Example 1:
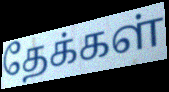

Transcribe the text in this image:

தேக்கள்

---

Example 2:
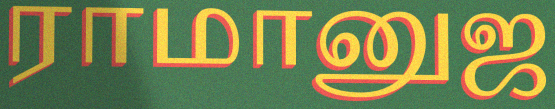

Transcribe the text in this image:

ராமானுஜ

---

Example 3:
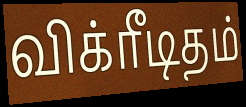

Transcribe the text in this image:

விக்ரீடிதம்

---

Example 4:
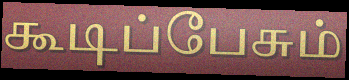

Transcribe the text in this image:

கூடிப்பேசும்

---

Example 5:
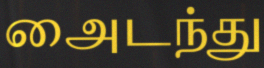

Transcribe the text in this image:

அைடந்து